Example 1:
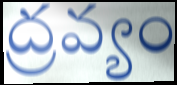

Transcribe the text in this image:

ద్రవ్యం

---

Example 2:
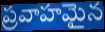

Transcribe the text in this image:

ప్రవాహమైన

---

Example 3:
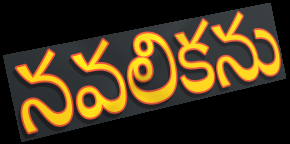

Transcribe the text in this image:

నవలికను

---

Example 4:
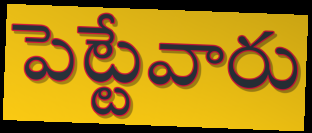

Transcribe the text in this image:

పెట్టేవారు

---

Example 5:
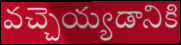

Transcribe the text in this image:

వచ్చెయ్యడానికి